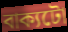
বাক্যটো